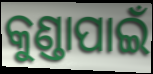
କୁଣ୍ଡାପାଇଁ